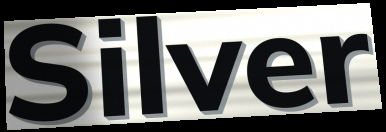
Silver